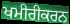
ਖਮੀਰੀਕਰਨ